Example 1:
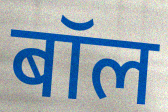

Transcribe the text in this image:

बॉल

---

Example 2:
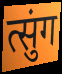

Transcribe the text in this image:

त्सुंग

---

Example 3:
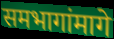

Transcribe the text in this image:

समभागांमागे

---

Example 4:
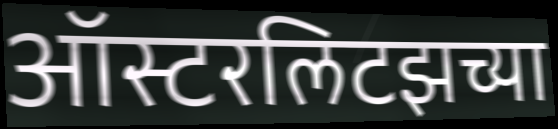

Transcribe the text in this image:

ऑस्टरलिटझच्या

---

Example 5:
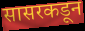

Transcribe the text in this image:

सासरकडून